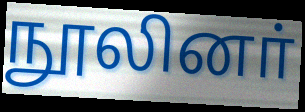
நூலினர்